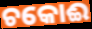
ଚକୋଈ